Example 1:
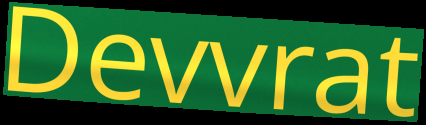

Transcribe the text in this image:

Devvrat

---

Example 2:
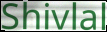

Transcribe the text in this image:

Shivlal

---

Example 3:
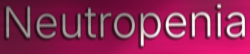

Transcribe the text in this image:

Neutropenia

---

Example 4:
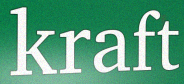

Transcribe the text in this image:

kraft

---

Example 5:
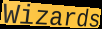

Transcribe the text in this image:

Wizards